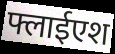
फ्लाईएश